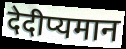
देदीप्यमान